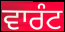
ਵਾਰੰਟ